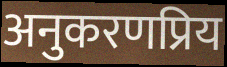
अनुकरणप्रिय